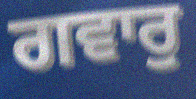
ਗਵਾਰੁ